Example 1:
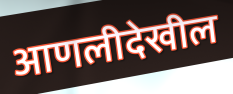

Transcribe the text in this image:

आणलीदेखील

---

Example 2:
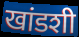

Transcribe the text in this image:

खांडशी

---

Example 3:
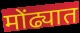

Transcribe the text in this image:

मोंढ्यात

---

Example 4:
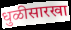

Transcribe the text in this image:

धुळीसारखा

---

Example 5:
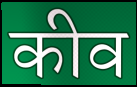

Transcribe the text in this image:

कीव